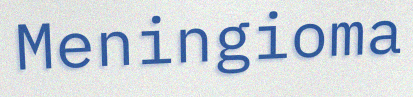
Meningioma